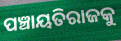
ପଞ୍ଚାୟତିରାଜକୁ